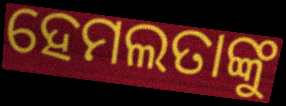
ହେମଲତାଙ୍କୁ